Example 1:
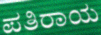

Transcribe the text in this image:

ಪತಿರಾಯ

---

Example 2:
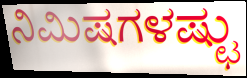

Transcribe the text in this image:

ನಿಮಿಷಗಳಷ್ಟು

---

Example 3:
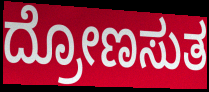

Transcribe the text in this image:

ದ್ರೋಣಸುತ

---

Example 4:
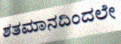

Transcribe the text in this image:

ಶತಮಾನದಿಂದಲೇ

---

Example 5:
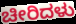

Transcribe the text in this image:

ಚೀರಿದಳು